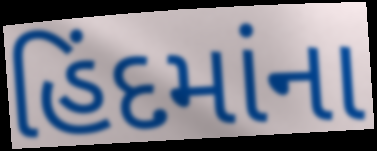
હિંદમાંના